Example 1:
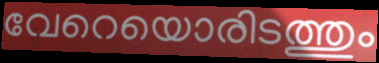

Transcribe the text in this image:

വേറെയൊരിടത്തും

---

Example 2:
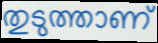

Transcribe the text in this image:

തുടുത്താണ്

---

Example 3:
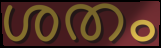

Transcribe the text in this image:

ശതം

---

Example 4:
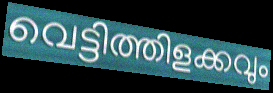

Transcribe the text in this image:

വെട്ടിത്തിളക്കവും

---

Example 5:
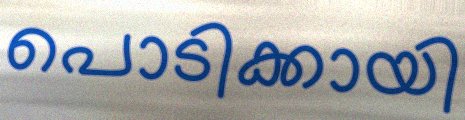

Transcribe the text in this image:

പൊടിക്കായി